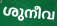
ശുനീവ